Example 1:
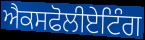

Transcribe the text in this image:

ਐਕਸਫੋਲੀਏਟਿੰਗ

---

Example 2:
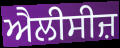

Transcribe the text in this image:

ਐਲੀਸੀਜ਼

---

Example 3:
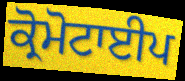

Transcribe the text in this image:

ਕ੍ਰੋਮੋਟਾਈਪ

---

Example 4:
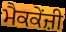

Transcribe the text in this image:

ਮੈਕਕੇਂਜ਼ੀ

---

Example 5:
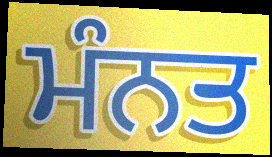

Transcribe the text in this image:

ਮੰਨਤ